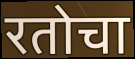
रतोचा